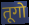
तूगो